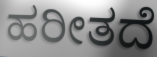
ಹರೀತದೆ